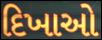
દિખાઓ